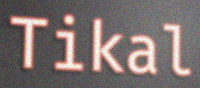
Tikal